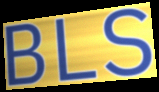
BLS